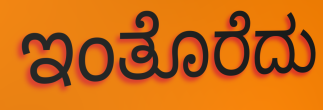
ಇಂತೊರೆದು